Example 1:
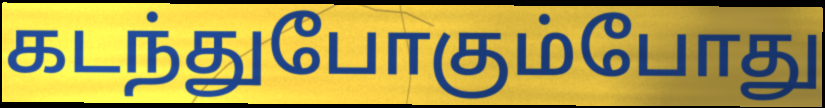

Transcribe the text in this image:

கடந்துபோகும்போது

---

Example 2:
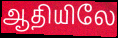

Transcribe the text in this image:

ஆதியிலே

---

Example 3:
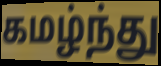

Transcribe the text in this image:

கமழ்ந்து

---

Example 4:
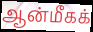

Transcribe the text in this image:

ஆன்மீகக்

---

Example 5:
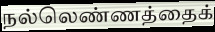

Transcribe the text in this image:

நல்லெண்ணத்தைக்